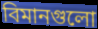
বিমানগুলো